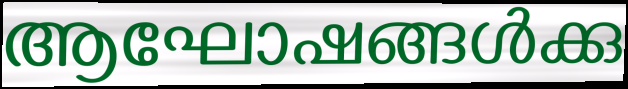
ആഘോഷങ്ങൾക്കു